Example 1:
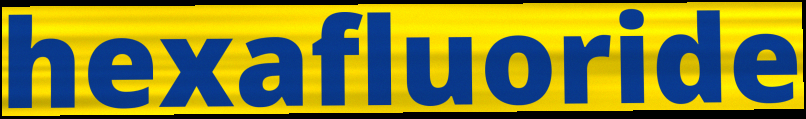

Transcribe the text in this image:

hexafluoride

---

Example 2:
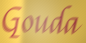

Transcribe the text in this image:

Gouda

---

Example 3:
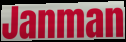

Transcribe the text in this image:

Janman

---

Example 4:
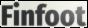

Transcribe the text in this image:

Finfoot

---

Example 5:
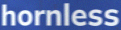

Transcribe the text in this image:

hornless